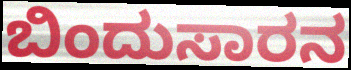
ಬಿಂದುಸಾರನ